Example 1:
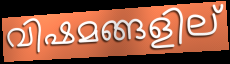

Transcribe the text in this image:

വിഷമങ്ങളില്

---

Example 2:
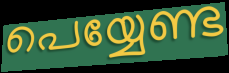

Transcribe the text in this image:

പെയ്യേണ്ട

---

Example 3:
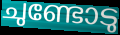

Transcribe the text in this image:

ചുണ്ടോടു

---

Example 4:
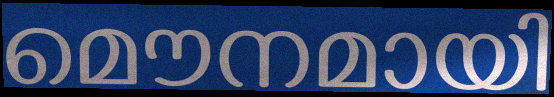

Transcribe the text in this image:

മൌനമായി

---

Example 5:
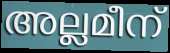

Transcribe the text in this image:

അല്ലമീന്